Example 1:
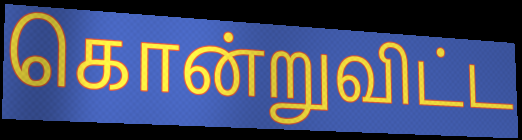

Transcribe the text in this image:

கொன்றுவிட்ட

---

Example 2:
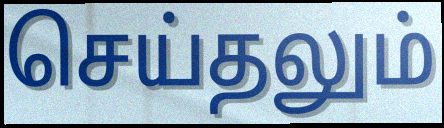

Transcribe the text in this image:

செய்தலும்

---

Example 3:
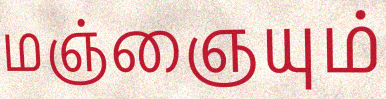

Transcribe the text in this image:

மஞ்ஞையும்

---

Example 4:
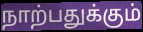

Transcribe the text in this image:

நாற்பதுக்கும்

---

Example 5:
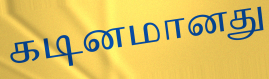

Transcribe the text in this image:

கடினமானது